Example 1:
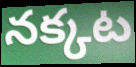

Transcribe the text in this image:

నక్కట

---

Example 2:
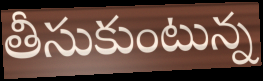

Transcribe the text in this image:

తీసుకుంటున్న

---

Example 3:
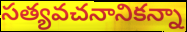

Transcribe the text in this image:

సత్యవచనానికన్నా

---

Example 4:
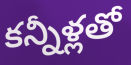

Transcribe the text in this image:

కన్నీళ్లతో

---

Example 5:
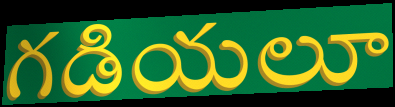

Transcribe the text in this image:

గడియలూ